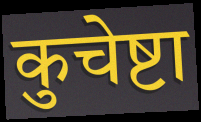
कुचेष्टा